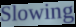
Slowing